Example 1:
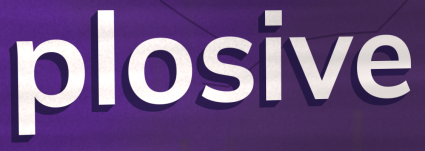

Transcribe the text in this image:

plosive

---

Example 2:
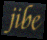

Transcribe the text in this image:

jibe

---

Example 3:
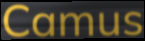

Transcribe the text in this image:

Camus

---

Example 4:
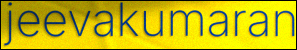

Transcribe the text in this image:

jeevakumaran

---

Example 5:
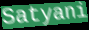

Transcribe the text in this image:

Satyani